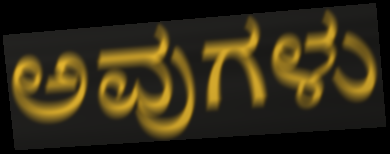
ಅವುಗಳು